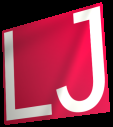
LJ